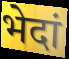
भेदां